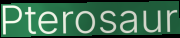
Pterosaur